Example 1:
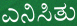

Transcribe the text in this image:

ಎನಿಸಿತು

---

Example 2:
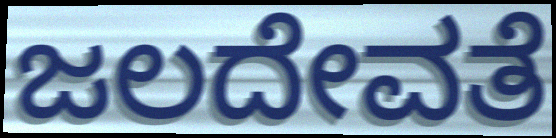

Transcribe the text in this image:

ಜಲದೇವತೆ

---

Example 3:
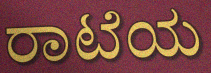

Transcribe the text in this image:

ರಾಟೆಯ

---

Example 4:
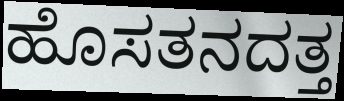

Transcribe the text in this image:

ಹೊಸತನದತ್ತ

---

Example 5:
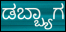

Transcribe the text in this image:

ಡಬ್ಬ್ಯಾಗ